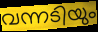
വന്നടിയും